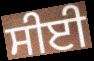
ਸੀਈ